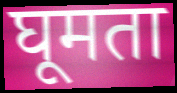
घूमता